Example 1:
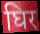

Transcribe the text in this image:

घिर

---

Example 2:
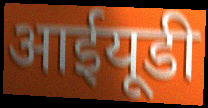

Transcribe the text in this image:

आईयूडी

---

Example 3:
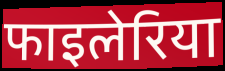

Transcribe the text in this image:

फाइलेरिया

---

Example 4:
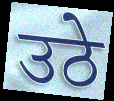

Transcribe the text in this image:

उठे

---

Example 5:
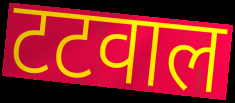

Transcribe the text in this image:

टटवाल